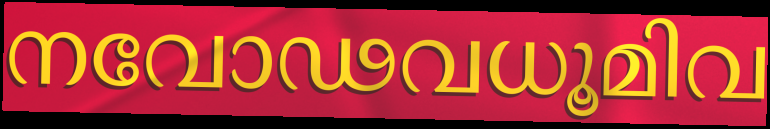
നവോഢവധൂമിവ